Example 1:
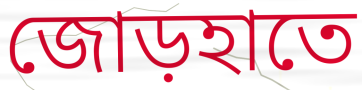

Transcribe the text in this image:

জোড়হাতে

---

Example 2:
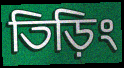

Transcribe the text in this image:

তিড়িং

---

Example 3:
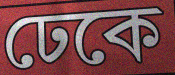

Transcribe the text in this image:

ঢেকে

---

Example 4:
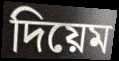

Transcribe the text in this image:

দিয়েম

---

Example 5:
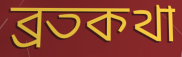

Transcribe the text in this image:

ব্রতকথা